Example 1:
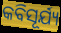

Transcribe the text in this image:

କବିସୂର୍ଯ୍ଯ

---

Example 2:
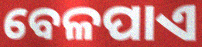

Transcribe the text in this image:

ବେଳପାଏ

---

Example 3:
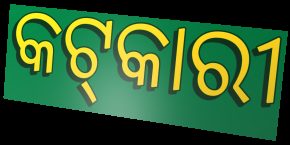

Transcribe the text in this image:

କଟ୍‌କାରୀ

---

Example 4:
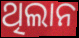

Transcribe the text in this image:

ଥିଲାନ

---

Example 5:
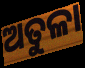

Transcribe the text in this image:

ଅତୁଳା